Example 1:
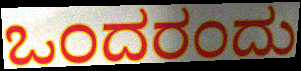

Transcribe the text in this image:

ಒಂದರಂದು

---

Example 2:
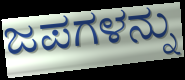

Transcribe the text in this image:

ಜಪಗಳನ್ನು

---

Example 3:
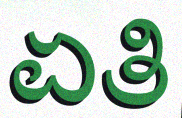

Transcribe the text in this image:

ಏತಿ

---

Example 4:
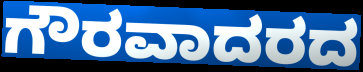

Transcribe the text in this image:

ಗೌರವಾದರದ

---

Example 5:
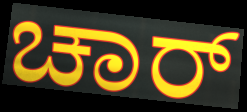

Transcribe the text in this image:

ಚಾರ್